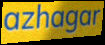
azhagar